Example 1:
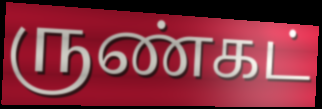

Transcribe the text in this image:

ருண்கட்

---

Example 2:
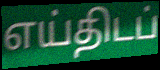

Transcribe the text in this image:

எய்திடப்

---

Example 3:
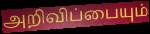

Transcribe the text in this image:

அறிவிப்பையும்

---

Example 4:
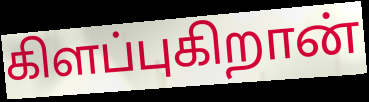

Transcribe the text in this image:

கிளப்புகிறான்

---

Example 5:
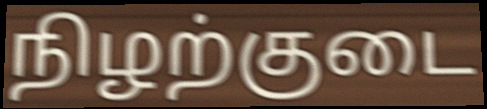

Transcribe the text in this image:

நிழற்குடை